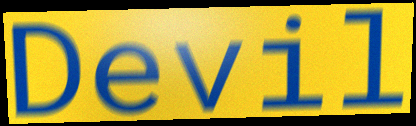
Devil